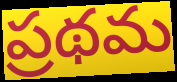
ప్రథమ